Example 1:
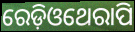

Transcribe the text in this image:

ରେଡ଼ିଓଥେରାପି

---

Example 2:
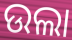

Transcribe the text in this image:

ଉଲା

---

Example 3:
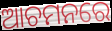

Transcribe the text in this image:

ଆଚମନରେ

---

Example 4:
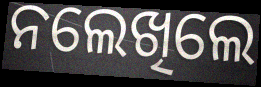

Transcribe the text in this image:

ନଲେଖିଲେ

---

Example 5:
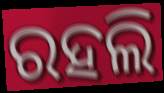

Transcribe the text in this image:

ରହଲି